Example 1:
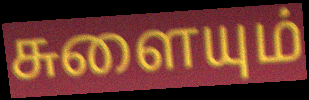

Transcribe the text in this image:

சுளையும்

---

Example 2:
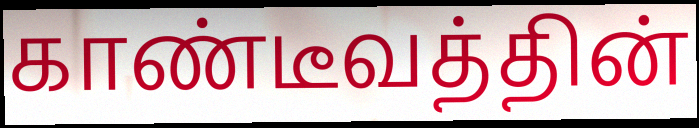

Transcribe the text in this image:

காண்டீவத்தின்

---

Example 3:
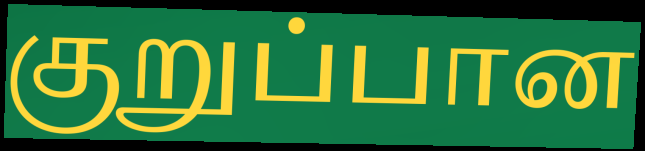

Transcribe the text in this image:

குறுப்பான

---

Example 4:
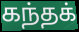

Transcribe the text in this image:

கந்தக்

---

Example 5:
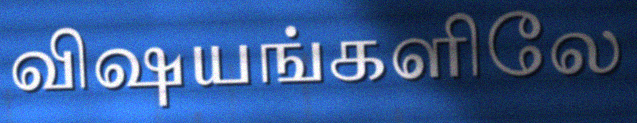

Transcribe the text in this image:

விஷயங்களிலே